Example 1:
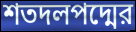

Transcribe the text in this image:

শতদলপদ্মের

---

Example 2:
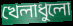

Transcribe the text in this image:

খেলাধুলো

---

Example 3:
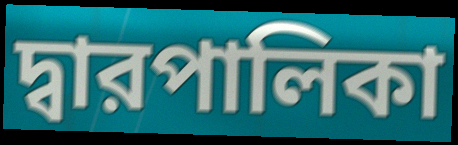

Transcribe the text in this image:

দ্বারপালিকা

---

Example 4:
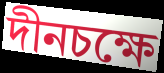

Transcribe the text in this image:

দীনচক্ষে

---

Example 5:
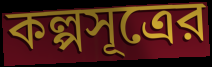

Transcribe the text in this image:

কল্পসূত্রের